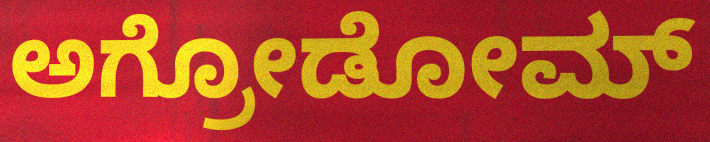
ಅಗ್ರೋಡೋಮ್